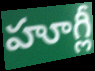
హూగ్లీ